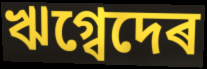
ঋগ্বেদেৰ